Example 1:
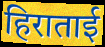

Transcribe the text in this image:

हिराताई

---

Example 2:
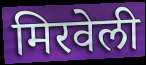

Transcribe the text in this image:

मिरवेली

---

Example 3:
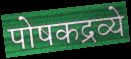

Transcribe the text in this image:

पोषकद्रव्ये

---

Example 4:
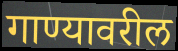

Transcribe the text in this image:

गाण्यावरील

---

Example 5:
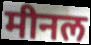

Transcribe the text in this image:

मीनल